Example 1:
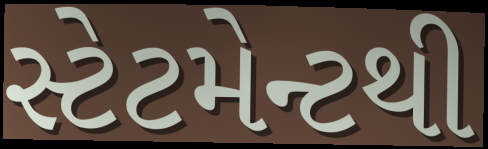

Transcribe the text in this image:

સ્ટેટમેન્ટથી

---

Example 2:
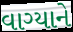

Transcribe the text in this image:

વાગ્યાને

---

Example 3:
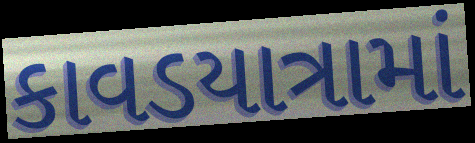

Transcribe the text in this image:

કાવડયાત્રામાં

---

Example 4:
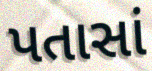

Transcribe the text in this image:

પતાસાં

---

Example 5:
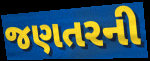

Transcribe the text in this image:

જણતરની